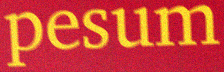
pesum